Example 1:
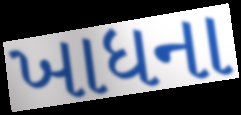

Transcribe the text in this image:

ખાધના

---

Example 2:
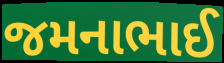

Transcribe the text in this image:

જમનાભાઈ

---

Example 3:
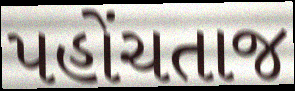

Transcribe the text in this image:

પહોંચતાજ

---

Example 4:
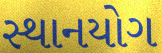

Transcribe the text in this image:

સ્થાનયોગ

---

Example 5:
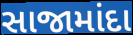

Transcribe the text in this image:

સાજામાંદા